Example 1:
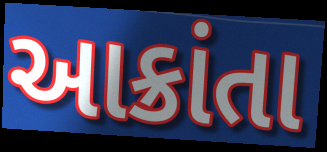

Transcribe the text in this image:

આક્રાંતા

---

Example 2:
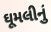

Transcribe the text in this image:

ઘૂમલીનું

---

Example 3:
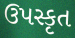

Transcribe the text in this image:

ઉપસ્કૃત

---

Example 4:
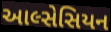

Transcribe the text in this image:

આલ્સેસિયન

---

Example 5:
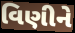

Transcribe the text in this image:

વિણીને